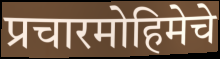
प्रचारमोहिमेचे